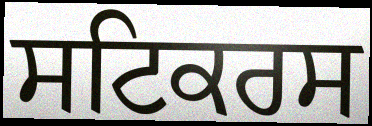
ਸਟਿਕਰਸ